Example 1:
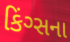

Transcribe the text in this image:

કિંગ્સના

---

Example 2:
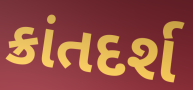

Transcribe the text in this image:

ક્રાંતદર્શ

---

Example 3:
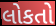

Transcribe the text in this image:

લોકતો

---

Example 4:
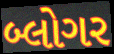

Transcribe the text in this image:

બ્લોગર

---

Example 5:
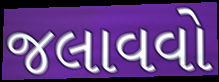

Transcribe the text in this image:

જલાવવો